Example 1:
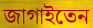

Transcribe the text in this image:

জাগাইতেন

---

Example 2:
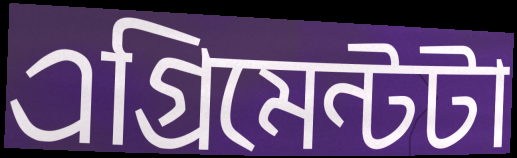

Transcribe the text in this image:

এগ্রিমেন্টটা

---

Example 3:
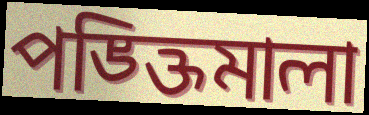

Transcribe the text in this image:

পঙ্ক্তিমালা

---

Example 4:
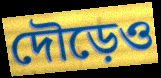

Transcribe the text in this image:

দৌড়েও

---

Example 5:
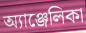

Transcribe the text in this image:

অ্যাঞ্জেলিকা